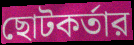
ছোটকর্তার